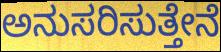
ಅನುಸರಿಸುತ್ತೇನೆ